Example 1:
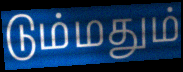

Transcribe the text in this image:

டும்மதும்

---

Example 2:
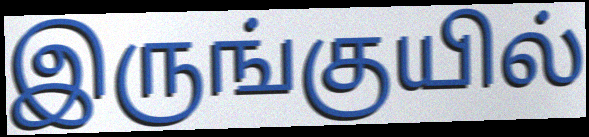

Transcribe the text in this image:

இருங்குயில்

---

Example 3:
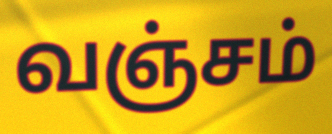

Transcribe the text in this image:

வஞ்சம்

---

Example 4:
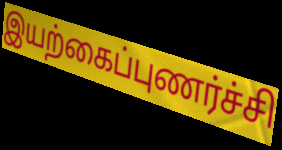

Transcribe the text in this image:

இயற்கைப்புணர்ச்சி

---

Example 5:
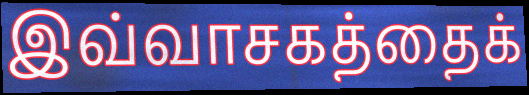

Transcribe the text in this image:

இவ்வாசகத்தைக்